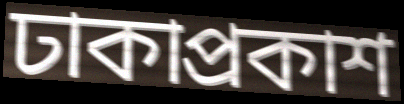
ঢাকাপ্রকাশ